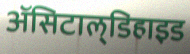
ॲसिटाल्डिहाइड